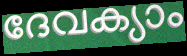
ദേവക്യാം